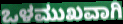
ಒಳಮುಖವಾಗಿ